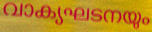
വാക്യഘടനയും